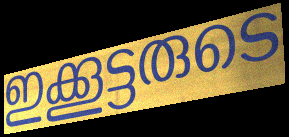
ഇക്കൂട്ടരുടെ